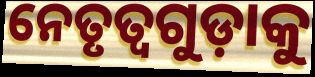
ନେତୃତ୍ୱଗୁଡ଼ାକୁ